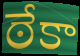
ఠేకా